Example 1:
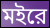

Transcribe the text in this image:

মইরে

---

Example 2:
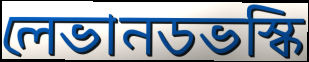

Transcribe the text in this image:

লেভানডভস্কি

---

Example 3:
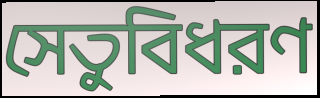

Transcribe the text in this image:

সেতুবিধরণ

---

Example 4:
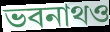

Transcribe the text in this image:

ভবনাথও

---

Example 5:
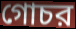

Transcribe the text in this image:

গোচর